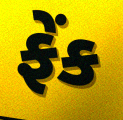
ફેંક